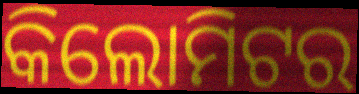
କିଲୋମିଟର